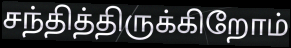
சந்தித்திருக்கிறோம்